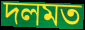
দলমত